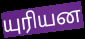
யுரியன